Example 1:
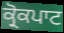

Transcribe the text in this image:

ਕ੍ਰੋਕਪਾਟ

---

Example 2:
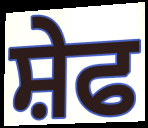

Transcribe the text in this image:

ਸ਼ੇਫ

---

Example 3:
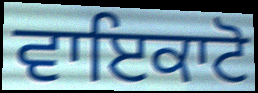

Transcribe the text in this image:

ਵਾਇਕਾਟੋ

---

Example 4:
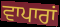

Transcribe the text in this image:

ਵਾਪਾਰਾਂ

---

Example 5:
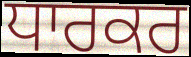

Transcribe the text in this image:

ਧਾਰਕਰ